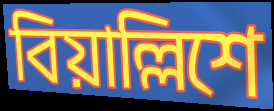
বিয়াল্লিশে